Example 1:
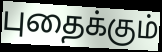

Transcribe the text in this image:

புதைக்கும்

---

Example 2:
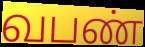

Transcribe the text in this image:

வபண்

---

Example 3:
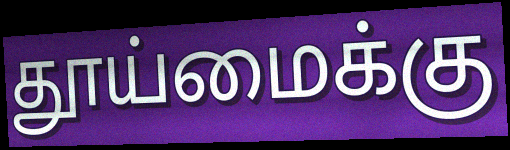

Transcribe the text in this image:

தூய்மைக்கு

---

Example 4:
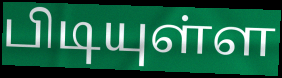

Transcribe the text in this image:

பிடியுள்ள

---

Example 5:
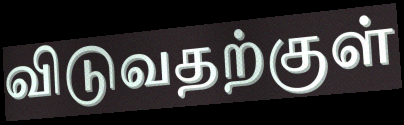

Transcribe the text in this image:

விடுவதற்குள்